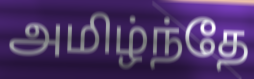
அமிழ்ந்தே